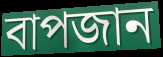
বাপজান